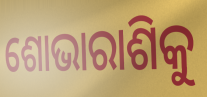
ଶୋଭାରାଶିକୁ